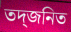
তদ্জনিত